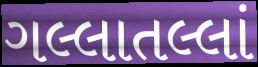
ગલ્લાતલ્લાં